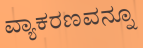
ವ್ಯಾಕರಣವನ್ನೂ